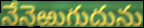
నేనెఱుగుదును